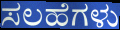
ಸಲಹೆಗಳು